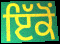
ਇੱਕੋਂ